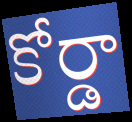
కోర్డా